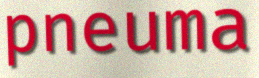
pneuma